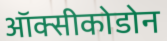
ऑक्सीकोडोन